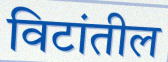
विटांतील